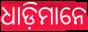
ଧାଡ଼ିମାନେ